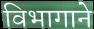
विभागाने